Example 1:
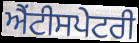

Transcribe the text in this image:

ਐਂਟੀਸਪੇਟਰੀ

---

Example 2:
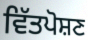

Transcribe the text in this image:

ਵਿੱਤਪੋਸ਼ਣ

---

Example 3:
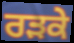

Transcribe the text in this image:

ਰੜਕੇ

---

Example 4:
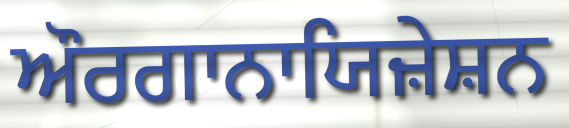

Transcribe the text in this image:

ਔਰਗਾਨਾਯਿਜ਼ੇਸ਼ਨ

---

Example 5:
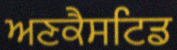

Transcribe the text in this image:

ਅਣਕੈਸਟਿਡ